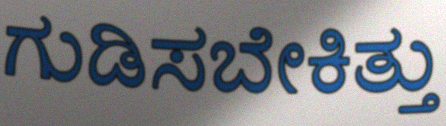
ಗುಡಿಸಬೇಕಿತ್ತು